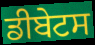
ਡੀਬੇਟਸ